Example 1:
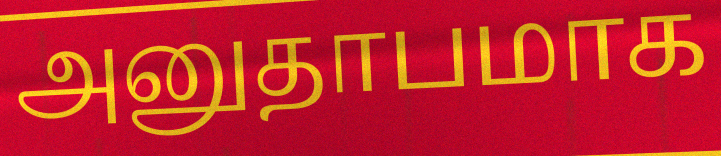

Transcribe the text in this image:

அனுதாபமாக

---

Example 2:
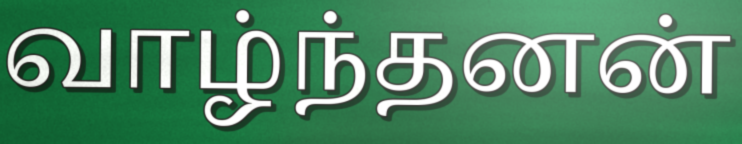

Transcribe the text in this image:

வாழ்ந்தனன்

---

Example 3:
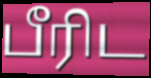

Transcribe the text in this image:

பீரிட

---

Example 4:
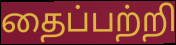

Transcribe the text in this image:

தைப்பற்றி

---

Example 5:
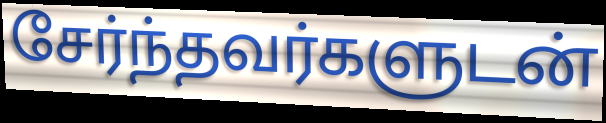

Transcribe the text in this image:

சேர்ந்தவர்களுடன்